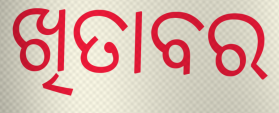
ଖିତାବର